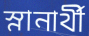
স্নানার্থী